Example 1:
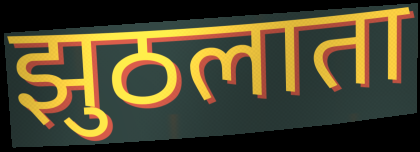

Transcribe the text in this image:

झुठलाता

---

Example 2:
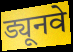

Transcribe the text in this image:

ड्यूनवे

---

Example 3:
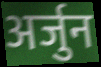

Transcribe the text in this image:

अर्जुन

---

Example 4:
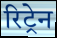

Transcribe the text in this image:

रिट्रेन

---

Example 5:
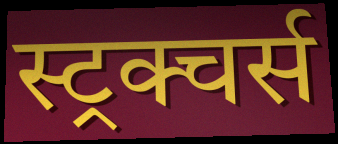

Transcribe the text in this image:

स्ट्रक्चर्स